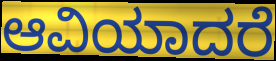
ಆವಿಯಾದರೆ